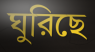
ঘুরিছে